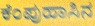
ಕೆಂಪುಹಾಸಿನ